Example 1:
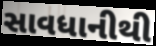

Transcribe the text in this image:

સાવધાનીથી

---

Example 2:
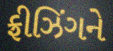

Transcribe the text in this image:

ફ્રીઝિંગને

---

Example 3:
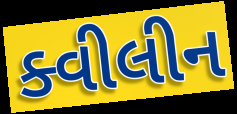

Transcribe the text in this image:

ક્વીલીન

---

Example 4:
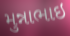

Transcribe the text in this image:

મુન્નાભાઇ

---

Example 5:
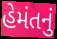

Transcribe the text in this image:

હેમંતનું